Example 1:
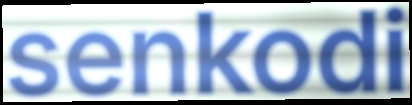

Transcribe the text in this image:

senkodi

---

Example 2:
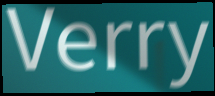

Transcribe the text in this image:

Verry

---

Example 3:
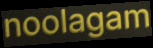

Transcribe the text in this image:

noolagam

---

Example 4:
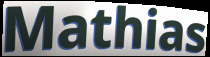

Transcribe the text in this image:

Mathias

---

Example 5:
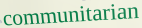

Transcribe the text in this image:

communitarian